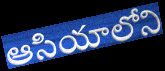
ఆసియాలోని